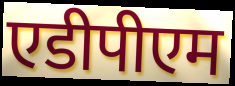
एडीपीएम